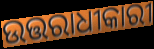
ଉତ୍ତରାଧୀକାରୀ